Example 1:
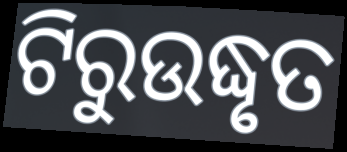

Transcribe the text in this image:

ଟିରୁଉଦ୍ଧୃତ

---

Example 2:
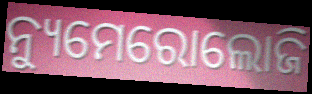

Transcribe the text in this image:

ନ୍ୟୁମେରୋଲୋଜି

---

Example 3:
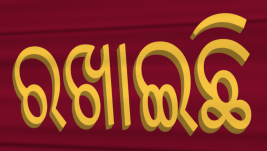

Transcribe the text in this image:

ରଖାଇଛି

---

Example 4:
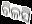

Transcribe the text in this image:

ବିଳସି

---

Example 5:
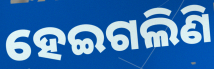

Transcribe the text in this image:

ହେଇଗଲିଣି